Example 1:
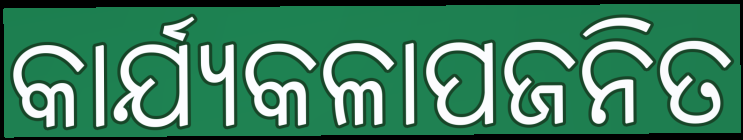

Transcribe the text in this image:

କାର୍ଯ୍ୟକଳାପଜନିତ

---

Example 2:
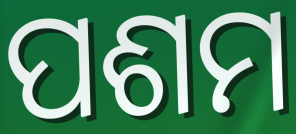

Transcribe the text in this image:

ପଶମ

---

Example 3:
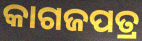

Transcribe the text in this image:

କାଗଜପତ୍ର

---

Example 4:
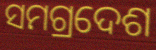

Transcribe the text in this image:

ସମଗ୍ରଦେଶ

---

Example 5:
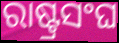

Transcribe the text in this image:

ରାଷ୍ଟ୍ରସଂଘ